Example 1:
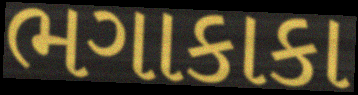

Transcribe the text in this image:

ભગાકાકા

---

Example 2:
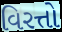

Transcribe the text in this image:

વિરત્તો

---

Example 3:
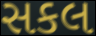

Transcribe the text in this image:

સકલ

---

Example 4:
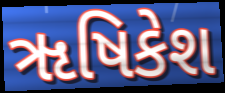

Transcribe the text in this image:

ૠષિકેશ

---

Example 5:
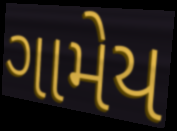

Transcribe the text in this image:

ગામેય